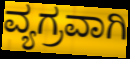
ವ್ಯಗ್ರವಾಗಿ